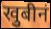
खुबीनं